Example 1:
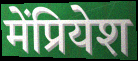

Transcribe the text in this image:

मेंप्रियेश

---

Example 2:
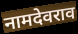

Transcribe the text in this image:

नामदेवराव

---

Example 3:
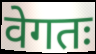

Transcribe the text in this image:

वेगतः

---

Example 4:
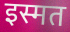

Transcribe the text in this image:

इस्मत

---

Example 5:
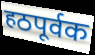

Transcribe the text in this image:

हठपूर्वक